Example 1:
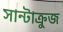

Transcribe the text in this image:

সান্টাক্রুজ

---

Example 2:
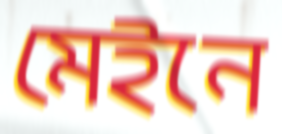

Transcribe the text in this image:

মেইনে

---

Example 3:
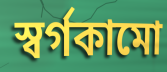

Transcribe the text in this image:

স্বর্গকামো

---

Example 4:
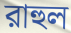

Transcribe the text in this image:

রাহুল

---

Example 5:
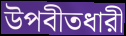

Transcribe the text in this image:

উপবীতধারী